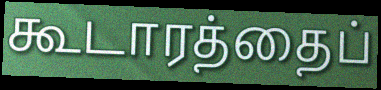
கூடாரத்தைப்